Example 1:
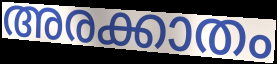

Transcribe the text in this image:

അരക്കാതം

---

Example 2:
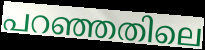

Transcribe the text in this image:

പറഞ്ഞതിലെ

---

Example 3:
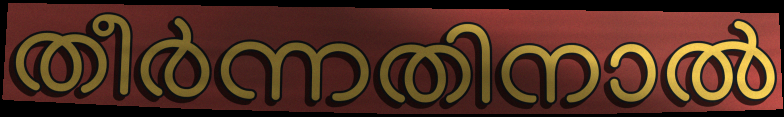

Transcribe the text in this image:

തീർന്നതിനാൽ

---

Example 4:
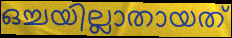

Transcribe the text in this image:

ഒച്ചയില്ലാതായത്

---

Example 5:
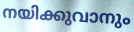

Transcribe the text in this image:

നയിക്കുവാനും